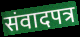
संवादपत्र